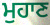
ਮੁਹਾਣ